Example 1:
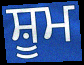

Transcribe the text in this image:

ਸ਼ੂਮ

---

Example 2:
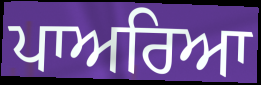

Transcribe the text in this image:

ਪਾਅਰਿਆ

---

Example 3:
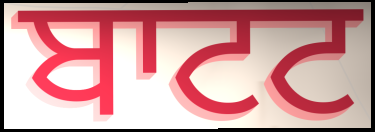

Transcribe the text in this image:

ਬਾਟਟ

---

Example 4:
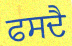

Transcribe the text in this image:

ਫਸਦੈ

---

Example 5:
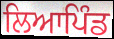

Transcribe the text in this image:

ਲਿਆਪਿੰਡ